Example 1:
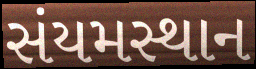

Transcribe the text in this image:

સંયમસ્થાન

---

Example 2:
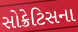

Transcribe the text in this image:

સોક્રેટિસના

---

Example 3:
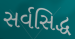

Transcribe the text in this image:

સર્વસિદ્ધ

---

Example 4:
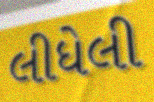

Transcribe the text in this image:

લીધેલી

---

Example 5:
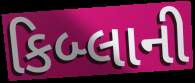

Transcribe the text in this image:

કિબ્લાની